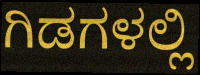
ಗಿಡಗಳಲ್ಲಿ